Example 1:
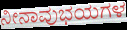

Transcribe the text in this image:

ನೀನಾವುಭಯಗಳ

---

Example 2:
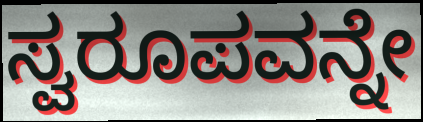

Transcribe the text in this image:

ಸ್ವರೂಪವನ್ನೇ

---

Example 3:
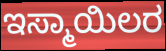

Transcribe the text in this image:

ಇಸ್ಮಾಯಿಲರ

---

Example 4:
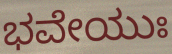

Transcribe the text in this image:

ಭವೇಯುಃ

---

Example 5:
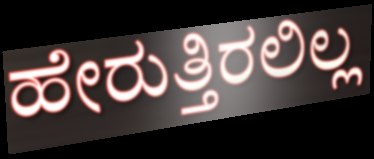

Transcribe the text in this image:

ಹೇರುತ್ತಿರಲಿಲ್ಲ